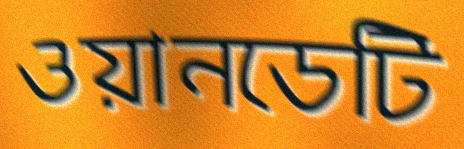
ওয়ানডেটি